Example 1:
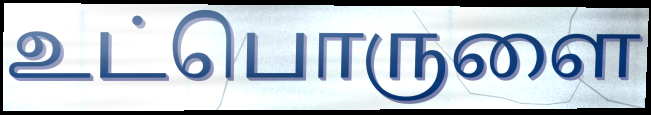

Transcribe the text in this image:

உட்பொருளை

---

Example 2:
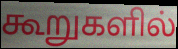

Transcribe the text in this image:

கூறுகளில்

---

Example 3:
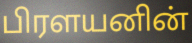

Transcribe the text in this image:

பிரளயனின்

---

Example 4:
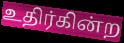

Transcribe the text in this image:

உதிர்கின்ற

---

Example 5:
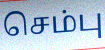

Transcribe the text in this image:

செம்பு